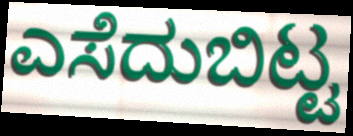
ಎಸೆದುಬಿಟ್ಟ